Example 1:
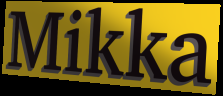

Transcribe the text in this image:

Mikka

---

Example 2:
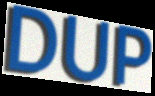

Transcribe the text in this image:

DUP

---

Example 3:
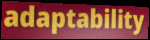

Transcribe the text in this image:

adaptability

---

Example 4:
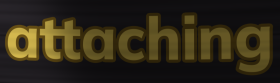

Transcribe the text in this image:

attaching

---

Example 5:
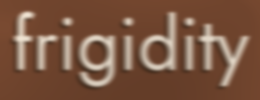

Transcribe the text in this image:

frigidity